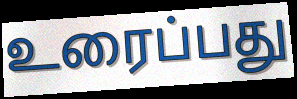
உரைப்பது